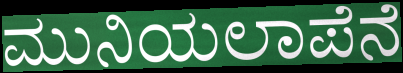
ಮುನಿಯಲಾಪೆನೆ